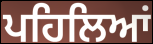
ਪਹਿਲਿਆਂ